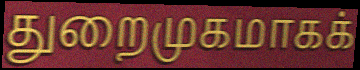
துறைமுகமாகக்